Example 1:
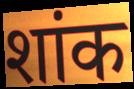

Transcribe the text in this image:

शांक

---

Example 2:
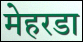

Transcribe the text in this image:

मेहरडा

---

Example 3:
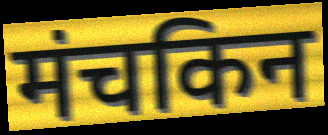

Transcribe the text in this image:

मंचकिन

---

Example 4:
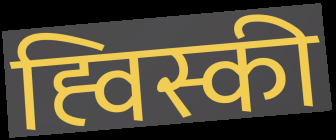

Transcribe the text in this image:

ह्विस्की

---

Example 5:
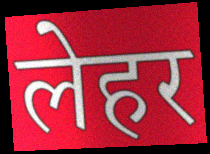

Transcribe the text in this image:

लेहर